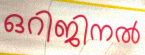
ഒറിജിനൽ